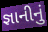
જ્ઞાનીનું